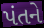
પંતને